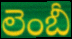
లెంబీ